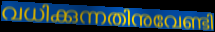
വധിക്കുന്നതിനുവേണ്ടി